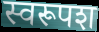
स्वरूपश